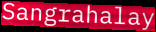
Sangrahalay